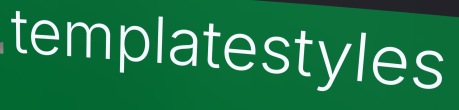
templatestyles